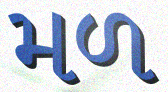
મળ